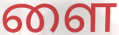
ளை